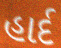
હાર્દ